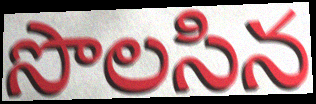
సొలసిన